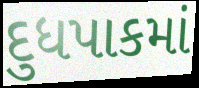
દુધપાકમાં